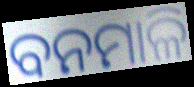
ବନମାଳି